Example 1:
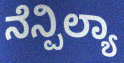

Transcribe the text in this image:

ನೆನ್ಪಿಲ್ಯಾ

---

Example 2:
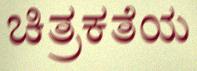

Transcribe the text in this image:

ಚಿತ್ರಕತೆಯ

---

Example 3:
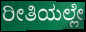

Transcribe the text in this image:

ರೀತಿಯಲ್ಲೇ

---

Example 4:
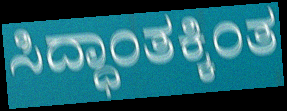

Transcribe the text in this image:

ಸಿದ್ಧಾಂತಕ್ಕಿಂತ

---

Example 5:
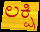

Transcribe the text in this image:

ಲಕ್ಷಿ